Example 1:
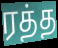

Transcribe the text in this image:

ரத்த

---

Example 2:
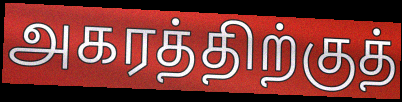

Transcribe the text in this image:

அகரத்திற்குத்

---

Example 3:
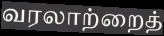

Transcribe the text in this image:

வரலாற்றைத்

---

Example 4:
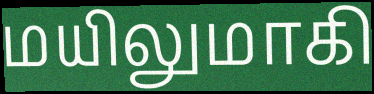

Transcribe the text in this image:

மயிலுமாகி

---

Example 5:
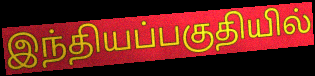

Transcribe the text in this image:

இந்தியப்பகுதியில்